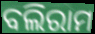
ବଲିରାମ